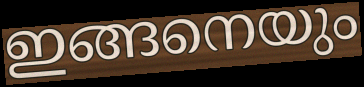
ഇങ്ങനെയും